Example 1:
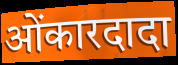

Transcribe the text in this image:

ओंकारदादा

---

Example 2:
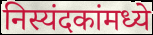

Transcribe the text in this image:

निस्यंदकांमध्ये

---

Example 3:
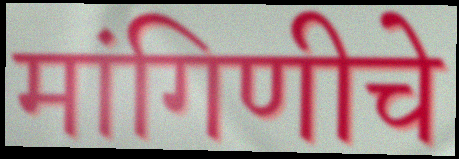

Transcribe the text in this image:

मांगिणीचे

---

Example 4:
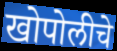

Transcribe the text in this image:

खोपोलीचे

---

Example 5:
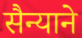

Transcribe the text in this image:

सैन्याने